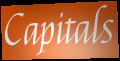
Capitals